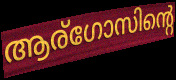
ആര്ഗോസിന്റെ